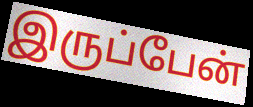
இருப்பேன்